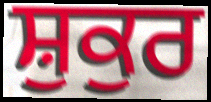
ਸ਼ੁਕੁਰ